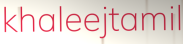
khaleejtamil